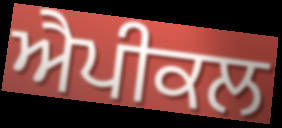
ਐਪੀਕਲ